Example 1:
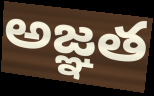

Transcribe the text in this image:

అజ్ఞత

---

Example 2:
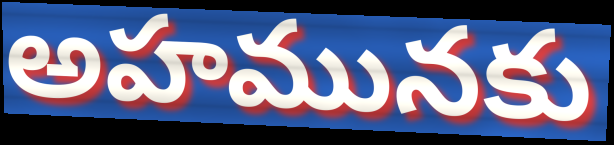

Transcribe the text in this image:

అహమునకు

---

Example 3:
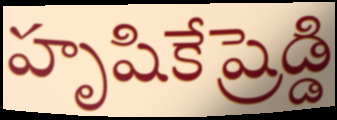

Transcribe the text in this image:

హృషికేష్రెడ్డి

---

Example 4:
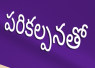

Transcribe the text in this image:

పరికల్పనతో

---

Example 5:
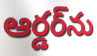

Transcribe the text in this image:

ఆర్డర్‌ను